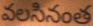
వలసినంత